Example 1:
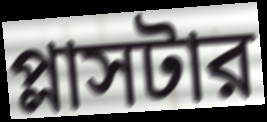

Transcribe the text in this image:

প্লাসটার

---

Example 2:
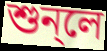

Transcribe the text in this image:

শুন্লে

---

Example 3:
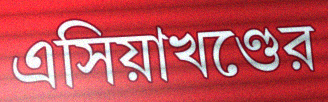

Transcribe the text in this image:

এসিয়াখণ্ডের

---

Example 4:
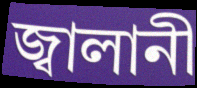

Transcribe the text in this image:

জ্বালানী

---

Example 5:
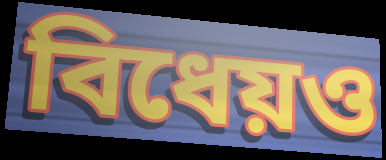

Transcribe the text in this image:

বিধেয়ও